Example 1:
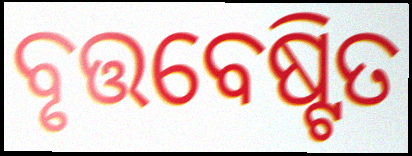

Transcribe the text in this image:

ବୃତ୍ତବେଷ୍ଟିତ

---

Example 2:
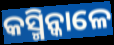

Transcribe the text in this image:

କସ୍ମିନ୍କାଳେ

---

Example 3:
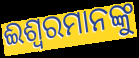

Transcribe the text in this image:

ଈଶ୍ୱରମାନଙ୍କୁ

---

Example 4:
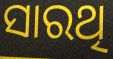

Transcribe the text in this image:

ସାରଥି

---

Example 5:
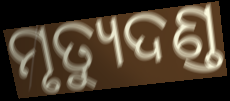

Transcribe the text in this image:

ମୃତ୍ୟୁଦଣ୍ଡ